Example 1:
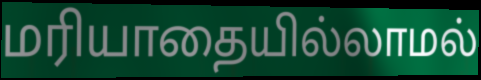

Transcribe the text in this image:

மரியாதையில்லாமல்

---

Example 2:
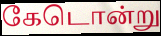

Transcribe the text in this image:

கேடொன்று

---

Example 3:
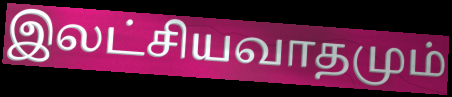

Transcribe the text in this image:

இலட்சியவாதமும்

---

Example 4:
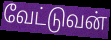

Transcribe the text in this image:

வேட்டுவன்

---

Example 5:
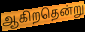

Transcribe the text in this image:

ஆகிறதென்று